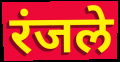
रंजले